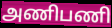
அணிபணி